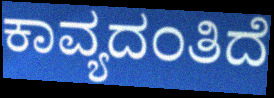
ಕಾವ್ಯದಂತಿದೆ